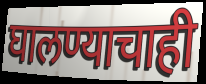
घालण्याचाही